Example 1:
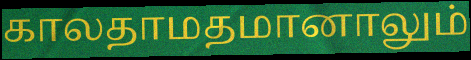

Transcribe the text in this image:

காலதாமதமானாலும்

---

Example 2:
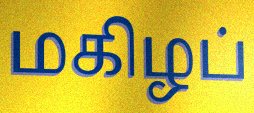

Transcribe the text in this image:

மகிழப்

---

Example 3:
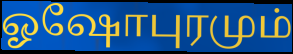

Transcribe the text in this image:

ஓஷோபுரமும்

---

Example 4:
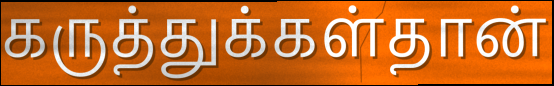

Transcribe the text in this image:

கருத்துக்கள்தான்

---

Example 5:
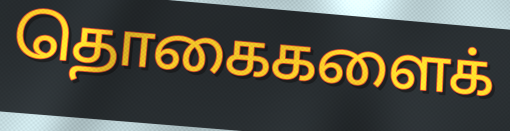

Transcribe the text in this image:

தொகைகளைக்